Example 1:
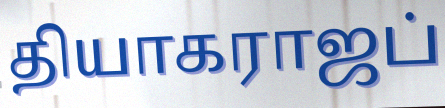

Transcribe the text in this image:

தியாகராஜப்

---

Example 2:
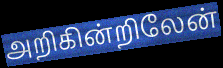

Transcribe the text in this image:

அறிகின்றிலேன்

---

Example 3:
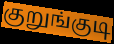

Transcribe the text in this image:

குறுங்குடி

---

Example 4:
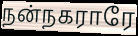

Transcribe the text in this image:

நன்நகராரே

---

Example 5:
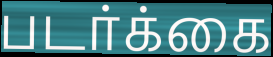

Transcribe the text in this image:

படர்க்கை